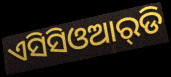
ଏସିସିଓଆର୍‌ଡି